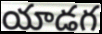
యాడగ